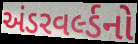
અંડરવર્લ્ડનો